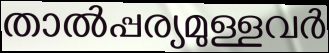
താൽപ്പര്യമുള്ളവർ